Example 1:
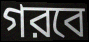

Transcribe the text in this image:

গরবে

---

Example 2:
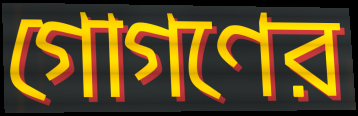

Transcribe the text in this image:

গোগণের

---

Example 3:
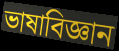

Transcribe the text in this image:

ভাষাবিজ্ঞান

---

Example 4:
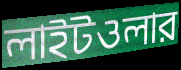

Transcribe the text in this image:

লাইটওলার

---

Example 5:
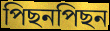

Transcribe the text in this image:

পিছনপিছন